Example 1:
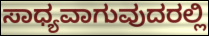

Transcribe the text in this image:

ಸಾಧ್ಯವಾಗುವುದರಲ್ಲಿ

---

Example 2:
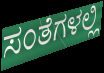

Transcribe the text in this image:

ಸಂತೆಗಳಲ್ಲಿ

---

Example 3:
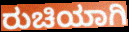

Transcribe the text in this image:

ರುಚಿಯಾಗಿ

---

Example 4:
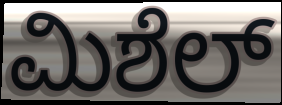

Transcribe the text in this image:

ಮಿಶೆಲ್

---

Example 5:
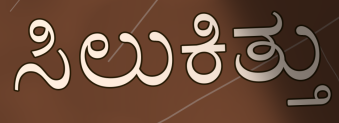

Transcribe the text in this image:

ಸಿಲುಕಿತ್ತು